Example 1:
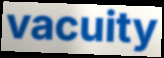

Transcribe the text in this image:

vacuity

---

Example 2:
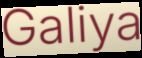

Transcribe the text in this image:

Galiya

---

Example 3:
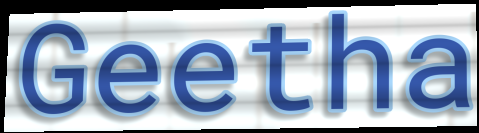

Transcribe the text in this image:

Geetha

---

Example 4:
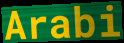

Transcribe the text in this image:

Arabi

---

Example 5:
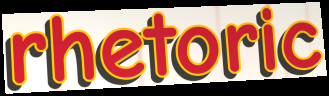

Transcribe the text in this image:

rhetoric